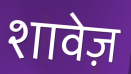
शावेज़